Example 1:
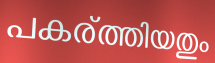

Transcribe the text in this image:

പകര്ത്തിയതും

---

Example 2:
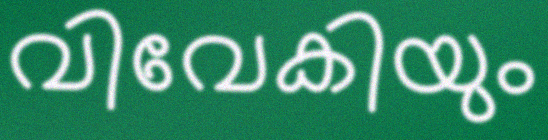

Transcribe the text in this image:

വിവേകിയും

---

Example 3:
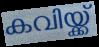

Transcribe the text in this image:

കവിയ്ക്ക്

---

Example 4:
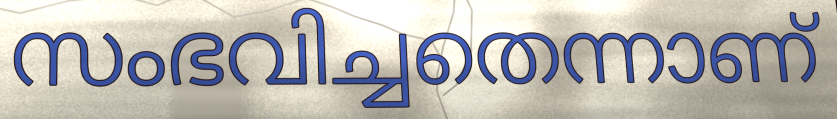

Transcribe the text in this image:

സംഭവിച്ചതെന്നാണ്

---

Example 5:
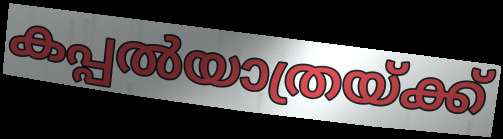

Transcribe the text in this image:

കപ്പൽയാത്രയ്ക്ക്